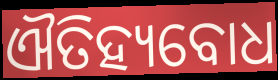
ଐତିହ୍ୟବୋଧ